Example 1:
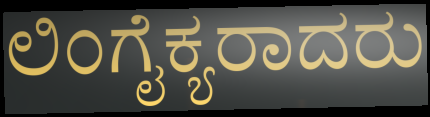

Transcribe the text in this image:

ಲಿಂಗೈಕ್ಯರಾದರು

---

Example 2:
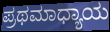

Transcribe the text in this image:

ಪ್ರಥಮಾಧ್ಯಾಯ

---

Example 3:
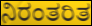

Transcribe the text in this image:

ನಿರಂತರಿತ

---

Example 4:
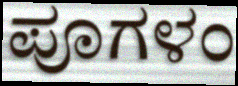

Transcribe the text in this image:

ಪೂಗಳಂ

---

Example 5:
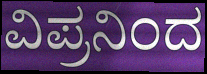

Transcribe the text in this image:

ವಿಪ್ರನಿಂದ